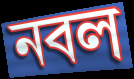
নবল